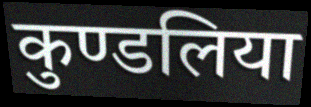
कुण्डलिया